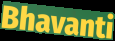
Bhavanti